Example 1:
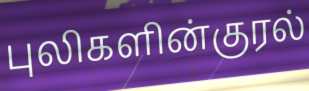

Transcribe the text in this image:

புலிகளின்குரல்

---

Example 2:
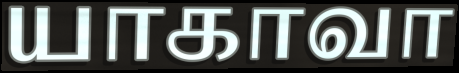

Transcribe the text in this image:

யாகாவா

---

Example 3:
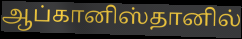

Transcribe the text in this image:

ஆப்கானிஸ்தானில்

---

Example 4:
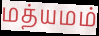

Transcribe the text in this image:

மத்யமம்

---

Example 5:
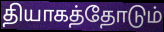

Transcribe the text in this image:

தியாகத்தோடும்